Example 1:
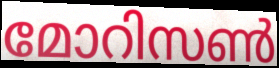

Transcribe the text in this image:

മോറിസൺ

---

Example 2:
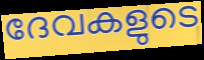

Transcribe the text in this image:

ദേവകളുടെ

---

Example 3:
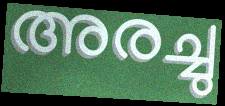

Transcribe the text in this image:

അരച്ചു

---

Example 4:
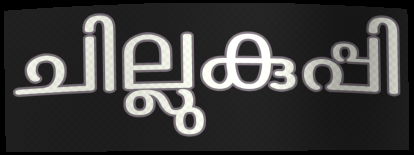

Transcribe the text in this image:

ചില്ലുകുപ്പി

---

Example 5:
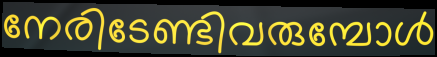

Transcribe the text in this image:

നേരിടേണ്ടിവരുമ്പോൾ